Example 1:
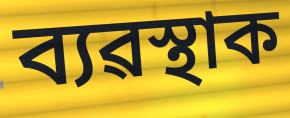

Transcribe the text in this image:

ব্যৱস্থাক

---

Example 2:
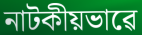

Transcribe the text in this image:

নাটকীয়ভাৱে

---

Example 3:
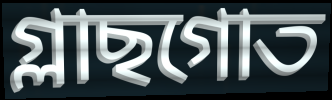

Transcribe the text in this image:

গ্লাছগোত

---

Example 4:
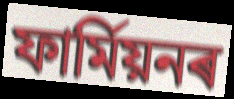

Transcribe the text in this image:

ফাৰ্মিয়নৰ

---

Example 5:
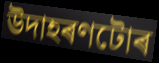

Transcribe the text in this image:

উদাহৰণটোৰ